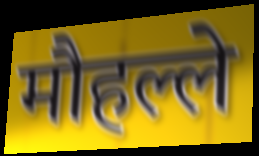
मौहल्ले